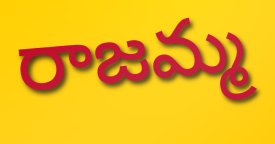
రాజమ్మ